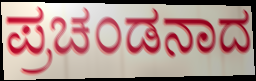
ಪ್ರಚಂಡನಾದ